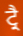
ਟ੍ਰੈ